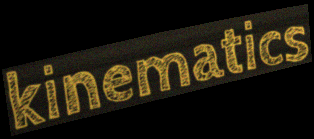
kinematics